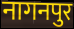
नागनपुर